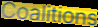
Coalitions